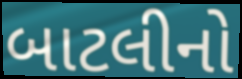
બાટલીનો